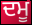
ਦਮੂ